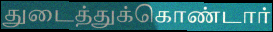
துடைத்துக்கொண்டார்